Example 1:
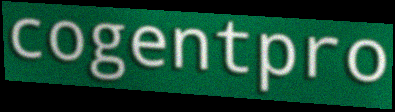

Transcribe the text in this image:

cogentpro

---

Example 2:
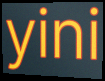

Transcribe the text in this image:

yini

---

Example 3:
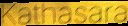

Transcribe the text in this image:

Kathasara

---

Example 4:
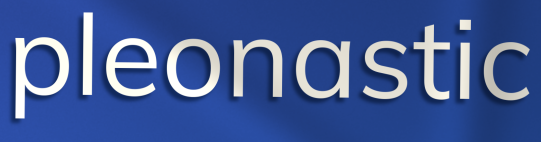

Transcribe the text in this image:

pleonastic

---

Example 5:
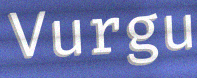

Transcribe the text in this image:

Vurgu